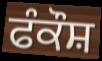
ਫੰਕੌਸ਼